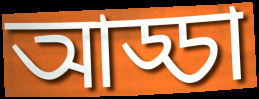
আড্ডা